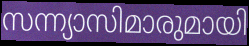
സന്ന്യാസിമാരുമായി